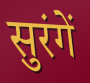
सुरंगें